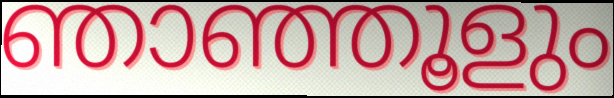
ഞാഞ്ഞൂളും